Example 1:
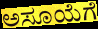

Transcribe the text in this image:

ಅಸೂಯೆಗೆ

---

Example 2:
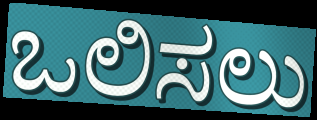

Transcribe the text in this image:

ಒಲಿಸಲು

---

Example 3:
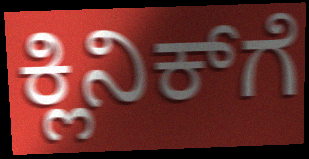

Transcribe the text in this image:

ಕ್ಲಿನಿಕ್‍ಗೆ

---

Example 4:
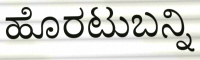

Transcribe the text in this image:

ಹೊರಟುಬನ್ನಿ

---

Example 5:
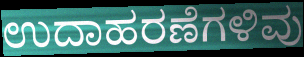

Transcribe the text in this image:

ಉದಾಹರಣೆಗಳಿವು